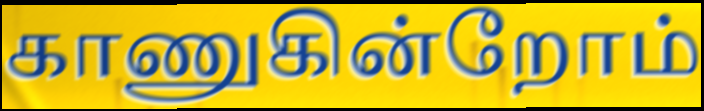
காணுகின்றோம்